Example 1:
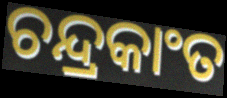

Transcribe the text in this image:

ଚନ୍ଦ୍ରକାଂତ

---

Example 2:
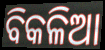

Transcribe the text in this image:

ବିକଳିଆ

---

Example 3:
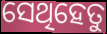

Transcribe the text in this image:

ସେଥିହେତୁ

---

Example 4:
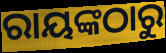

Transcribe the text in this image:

ରାୟଙ୍କଠାରୁ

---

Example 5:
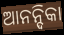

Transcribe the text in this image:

ଆନନ୍ଦିକା